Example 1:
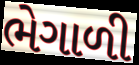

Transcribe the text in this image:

ભેગાળી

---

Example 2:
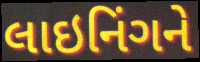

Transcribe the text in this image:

લાઇનિંગને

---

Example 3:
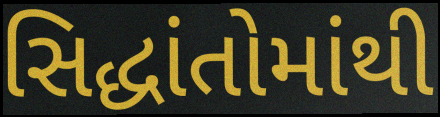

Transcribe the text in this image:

સિદ્ધાંતોમાંથી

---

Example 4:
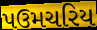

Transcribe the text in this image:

પઉમચરિય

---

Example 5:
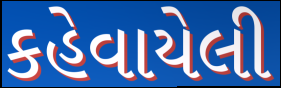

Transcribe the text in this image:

કહેવાયેલી